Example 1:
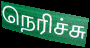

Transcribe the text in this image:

நெரிச்சு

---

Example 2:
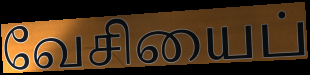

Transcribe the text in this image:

வேசியைப்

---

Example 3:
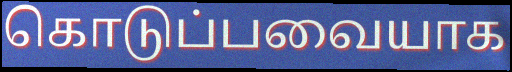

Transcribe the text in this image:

கொடுப்பவையாக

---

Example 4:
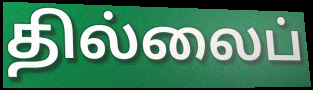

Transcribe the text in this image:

தில்லைப்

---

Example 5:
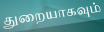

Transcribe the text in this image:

துறையாகவும்